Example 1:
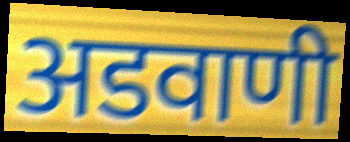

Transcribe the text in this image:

अडवाणी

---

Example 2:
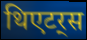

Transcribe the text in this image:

थिएटर्स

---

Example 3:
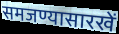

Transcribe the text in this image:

समजण्यासारखें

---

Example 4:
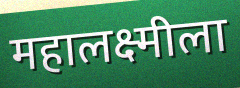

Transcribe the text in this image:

महालक्ष्मीला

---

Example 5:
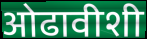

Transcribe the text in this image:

ओढावीशी